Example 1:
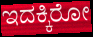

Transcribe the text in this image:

ಇದಕ್ಕಿರೋ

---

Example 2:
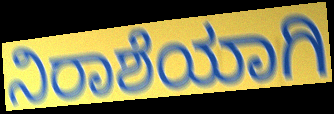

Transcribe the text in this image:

ನಿರಾಶೆಯಾಗಿ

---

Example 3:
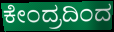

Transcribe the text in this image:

ಕೇಂದ್ರದಿಂದ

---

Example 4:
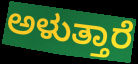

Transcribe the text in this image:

ಅಳುತ್ತಾರೆ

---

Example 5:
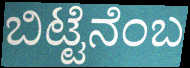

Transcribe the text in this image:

ಬಿಟ್ಟೆನೆಂಬ